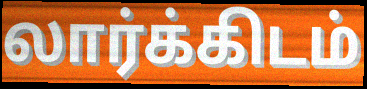
லார்க்கிடம்